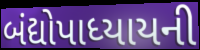
બંદ્યોપાધ્યાયની